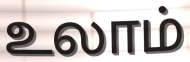
உலாம்